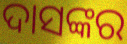
ଦାସଙ୍କର